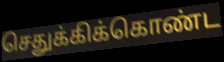
செதுக்கிக்கொண்ட